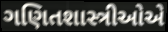
ગણિતશાસ્ત્રીઓએ